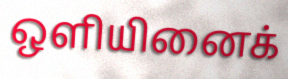
ஒளியினைக்